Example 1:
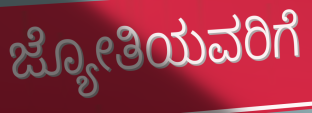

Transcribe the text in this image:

ಜ್ಯೋತಿಯವರಿಗೆ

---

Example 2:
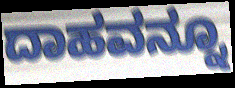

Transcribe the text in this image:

ದಾಹವನ್ನೂ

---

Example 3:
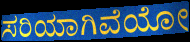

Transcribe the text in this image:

ಸರಿಯಾಗಿವೆಯೋ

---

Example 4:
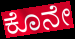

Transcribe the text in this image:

ಕೊನೇ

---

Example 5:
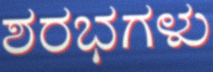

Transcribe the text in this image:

ಶರಭಗಳು